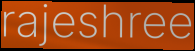
rajeshree